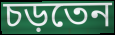
চড়তেন